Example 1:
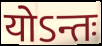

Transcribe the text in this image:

योऽन्तः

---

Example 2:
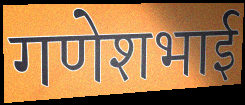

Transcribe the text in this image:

गणेशभाई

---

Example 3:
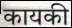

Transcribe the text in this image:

कायकी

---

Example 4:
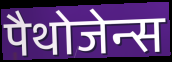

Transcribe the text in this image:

पैथोजेन्स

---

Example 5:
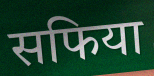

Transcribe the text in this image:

सफिया